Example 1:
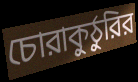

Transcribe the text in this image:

চোরাকুঠুরির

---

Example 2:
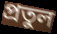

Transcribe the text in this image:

প্রতুল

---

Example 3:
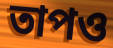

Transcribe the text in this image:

তাপও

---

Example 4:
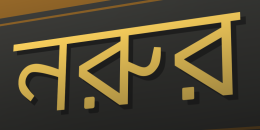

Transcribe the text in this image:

নরুর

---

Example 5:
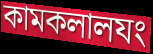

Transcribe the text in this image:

কামকলালযং